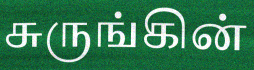
சுருங்கின்